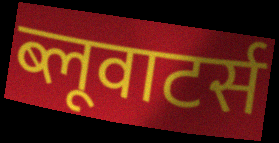
ब्लूवाटर्स